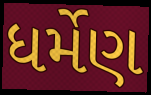
ધર્મેણ